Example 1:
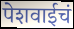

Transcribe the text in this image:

पेशवाईचं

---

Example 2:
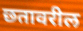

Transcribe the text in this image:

छतावरील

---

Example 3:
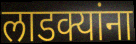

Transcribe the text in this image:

लाडक्यांना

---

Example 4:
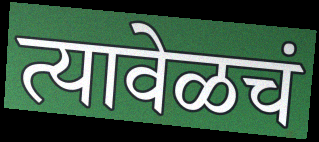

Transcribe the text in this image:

त्यावेळचं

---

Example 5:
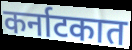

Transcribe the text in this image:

कर्नाटकात